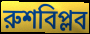
রুশবিপ্লব